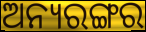
ଅନ୍ୟରଙ୍ଗର